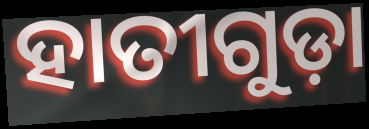
ହାତୀଗୁଡ଼ା